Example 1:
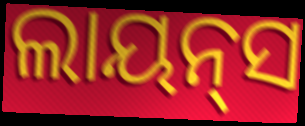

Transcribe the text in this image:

ଲାୟନ୍‌ସ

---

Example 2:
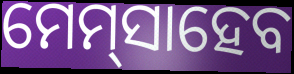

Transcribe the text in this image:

ମେମ୍‌ସାହେବ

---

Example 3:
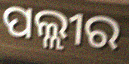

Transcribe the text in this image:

ପଲ୍ଲୀର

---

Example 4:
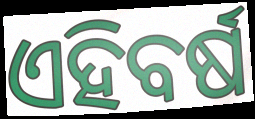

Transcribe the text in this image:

ଏହିବର୍ଷ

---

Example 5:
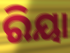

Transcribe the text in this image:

ରିୟା